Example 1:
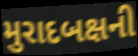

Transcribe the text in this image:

મુરાદબક્ષની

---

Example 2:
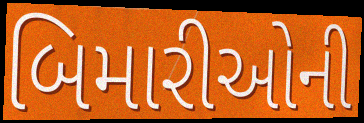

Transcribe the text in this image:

બિમારીઓની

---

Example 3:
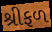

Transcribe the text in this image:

શ્રીફળ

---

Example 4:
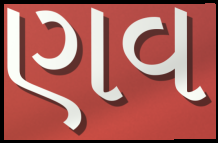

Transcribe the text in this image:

ણવ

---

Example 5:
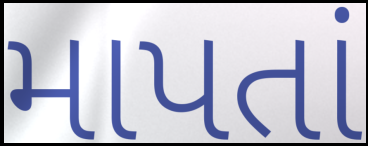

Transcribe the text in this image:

માપતાં